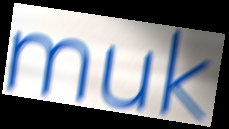
muk